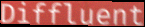
Diffluent